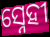
ସ୍ନେହୀ